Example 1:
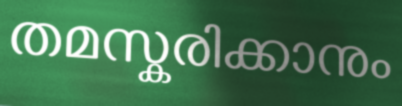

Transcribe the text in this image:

തമസ്കരിക്കാനും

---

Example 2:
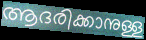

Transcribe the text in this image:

ആദരിക്കാനുള്ള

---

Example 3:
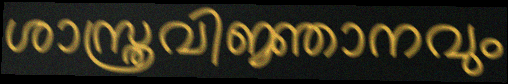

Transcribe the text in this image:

ശാസ്ത്രവിജ്ഞാനവും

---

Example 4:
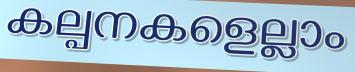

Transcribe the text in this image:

കല്പനകളെല്ലാം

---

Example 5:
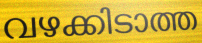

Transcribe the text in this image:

വഴക്കിടാത്ത